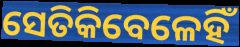
ସେତିକିବେଳେହିଁ